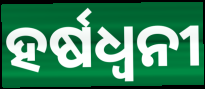
ହର୍ଷଧ୍ୱନୀ